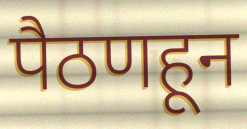
पैठणहून